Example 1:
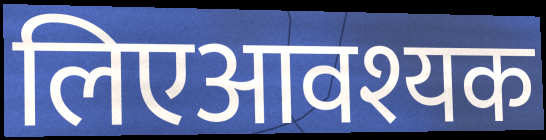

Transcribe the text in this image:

लिएआवश्यक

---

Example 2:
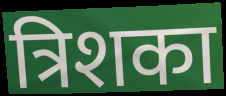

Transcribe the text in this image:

त्रिशका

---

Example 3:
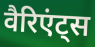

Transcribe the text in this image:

वैरिएंट्स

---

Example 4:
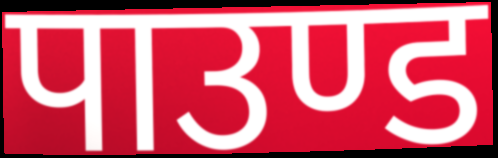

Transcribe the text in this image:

पाउण्‍ड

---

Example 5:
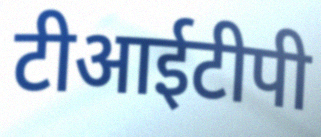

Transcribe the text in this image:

टीआईटीपी